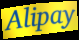
Alipay